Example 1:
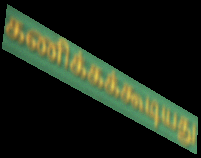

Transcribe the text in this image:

கணிக்கக்கூடியது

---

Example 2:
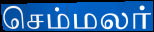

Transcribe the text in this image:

செம்மலர்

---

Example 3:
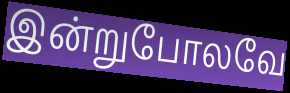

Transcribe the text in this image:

இன்றுபோலவே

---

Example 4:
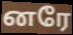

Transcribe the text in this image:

னரே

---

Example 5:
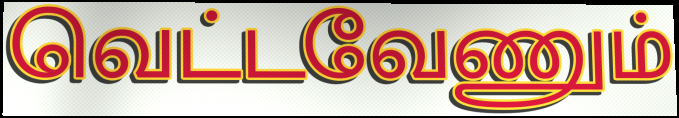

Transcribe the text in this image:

வெட்டவேணும்